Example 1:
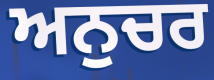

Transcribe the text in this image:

ਅਨੁਚਰ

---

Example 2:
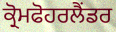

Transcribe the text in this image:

ਕ੍ਰੋਮਫੋਹਰਲੈਂਡਰ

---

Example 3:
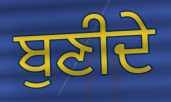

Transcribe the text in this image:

ਬੁਣੀਦੇ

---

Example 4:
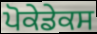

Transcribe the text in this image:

ਪੋਕੇਡੇਕਸ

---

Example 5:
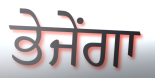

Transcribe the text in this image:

ਭੇਜੇਂਗਾ